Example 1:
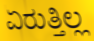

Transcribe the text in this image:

ಏರುತ್ತಿಲ್ಲ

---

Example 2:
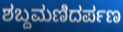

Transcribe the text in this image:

ಶಬ್ದಮಣಿದರ್ಪಣ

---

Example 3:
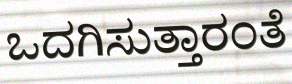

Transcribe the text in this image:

ಒದಗಿಸುತ್ತಾರಂತೆ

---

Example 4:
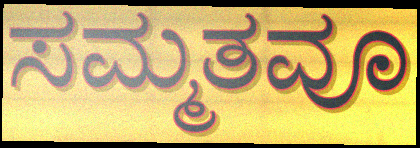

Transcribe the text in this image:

ಸಮ್ಮತವೂ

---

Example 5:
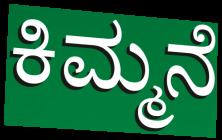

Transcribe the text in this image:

ಕಿಮ್ಮನೆ